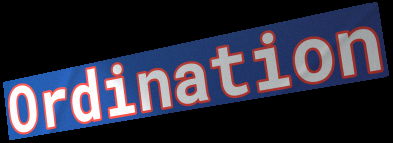
Ordination